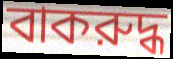
বাকরুদ্ধ